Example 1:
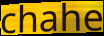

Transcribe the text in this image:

chahe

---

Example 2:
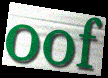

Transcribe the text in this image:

oof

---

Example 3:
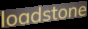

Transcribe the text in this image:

loadstone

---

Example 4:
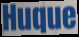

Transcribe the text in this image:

Huque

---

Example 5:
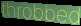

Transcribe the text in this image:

throbbed